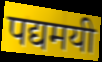
पद्यमयी